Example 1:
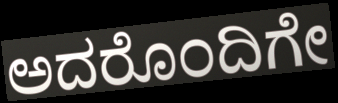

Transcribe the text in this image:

ಅದರೊಂದಿಗೇ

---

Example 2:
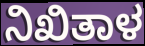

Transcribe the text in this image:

ನಿಖಿತಾಳ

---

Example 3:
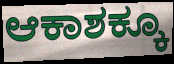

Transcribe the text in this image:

ಆಕಾಶಕ್ಕೂ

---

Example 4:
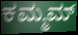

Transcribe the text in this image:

ಕಮ್ಮಮ್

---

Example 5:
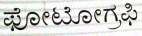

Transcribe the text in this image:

ಫೋಟೋಗ್ರಫಿ